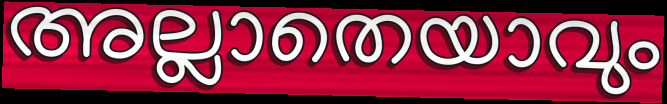
അല്ലാതെയാവും